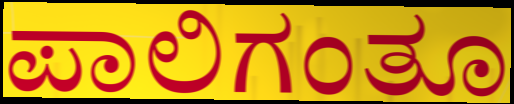
ಪಾಲಿಗಂತೂ